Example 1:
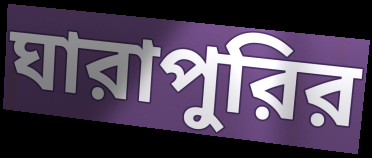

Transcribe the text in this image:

ঘারাপুরির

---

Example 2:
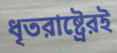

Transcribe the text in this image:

ধৃতরাষ্ট্রেরই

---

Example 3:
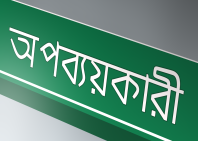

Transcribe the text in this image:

অপব্যয়কারী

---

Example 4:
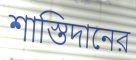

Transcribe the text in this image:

শাস্তিদানের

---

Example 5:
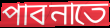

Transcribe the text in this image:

পাবনাতে